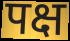
पक्ष